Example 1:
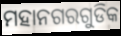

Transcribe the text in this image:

ମହାନଗରଗୁଡିକ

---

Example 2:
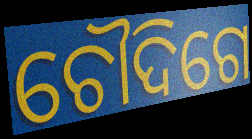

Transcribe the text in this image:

ଚୌଦିଗେ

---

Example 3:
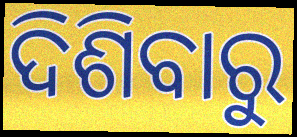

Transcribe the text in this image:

ଦିଶିବାରୁ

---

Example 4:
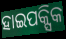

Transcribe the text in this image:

ହାଇପକ୍ସିକ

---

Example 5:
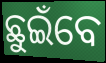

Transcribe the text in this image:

ଛୁଇଁବେ